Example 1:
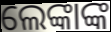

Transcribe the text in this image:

ଲେଙ୍କାଙ୍କ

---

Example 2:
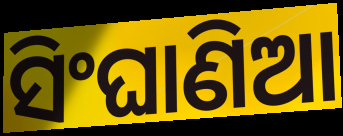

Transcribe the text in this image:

ସିଂଘାଣିଆ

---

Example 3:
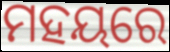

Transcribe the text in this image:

ମହୟରେ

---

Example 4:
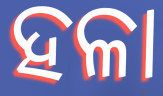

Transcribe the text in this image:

ହଳା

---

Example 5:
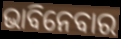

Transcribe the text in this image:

ଭାବିନେବାର